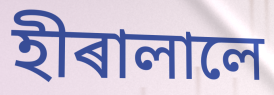
হীৰালালে